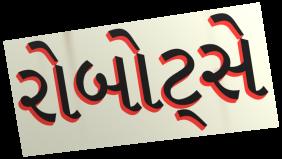
રોબોટ્સે